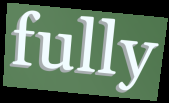
fully